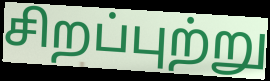
சிறப்புற்று